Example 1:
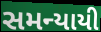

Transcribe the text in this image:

સમન્યાયી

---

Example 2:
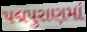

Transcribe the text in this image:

પદ્મપુરાણમાં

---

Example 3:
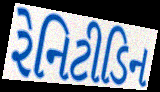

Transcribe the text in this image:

રેનિટીડિન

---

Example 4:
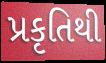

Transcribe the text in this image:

પ્રકૃતિથી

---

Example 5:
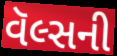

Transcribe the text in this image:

વૅલ્સની